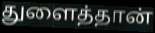
துளைத்தான்